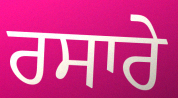
ਰਸਾਰੇ